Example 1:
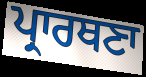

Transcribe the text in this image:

ਪ੍ਰਾਰਥਣਾ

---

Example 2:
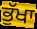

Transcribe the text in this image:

ਭੁੱਖਾ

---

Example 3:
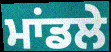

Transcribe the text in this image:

ਮਾਂਡਲੇ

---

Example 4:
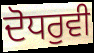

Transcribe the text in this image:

ਦੋਧਰੁਵੀ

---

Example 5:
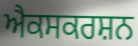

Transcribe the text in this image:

ਐਕਸਕਰਸ਼ਨ